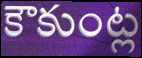
కౌకుంట్ల